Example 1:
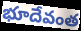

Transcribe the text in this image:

భూదేవంత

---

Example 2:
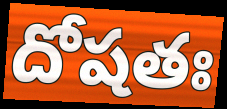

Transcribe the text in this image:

దోషతః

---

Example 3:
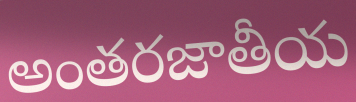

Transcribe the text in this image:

అంతరజాతీయ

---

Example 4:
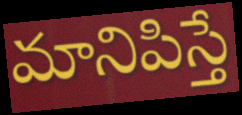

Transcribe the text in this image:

మానిపిస్తే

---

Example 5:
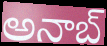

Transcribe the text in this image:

అనాబ్